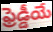
ఫ్రెడ్డీయే